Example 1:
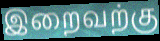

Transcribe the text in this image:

இறைவற்கு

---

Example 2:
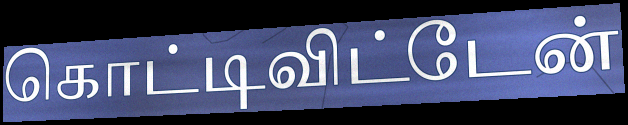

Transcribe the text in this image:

கொட்டிவிட்டேன்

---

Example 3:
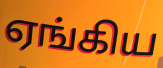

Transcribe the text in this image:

ஏங்கிய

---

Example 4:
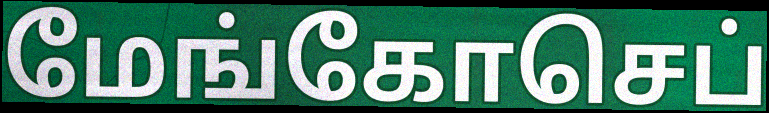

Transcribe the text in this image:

மேங்கோசெப்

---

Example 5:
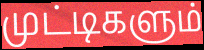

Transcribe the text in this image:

முட்டிகளும்